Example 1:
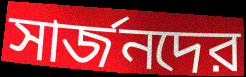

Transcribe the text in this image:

সার্জনদের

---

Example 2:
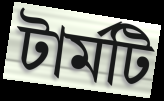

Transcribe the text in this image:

টার্মটি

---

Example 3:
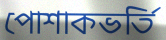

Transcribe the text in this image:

পোশাকভর্তি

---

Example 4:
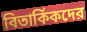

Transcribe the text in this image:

বিতার্কিকদের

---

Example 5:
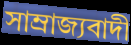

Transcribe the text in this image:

সাম্রাজ্যবাদী